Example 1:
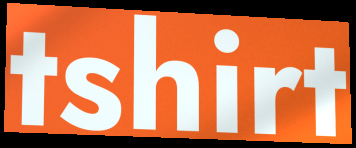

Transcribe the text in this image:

tshirt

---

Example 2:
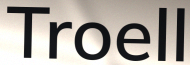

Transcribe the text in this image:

Troell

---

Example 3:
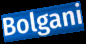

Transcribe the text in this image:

Bolgani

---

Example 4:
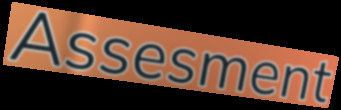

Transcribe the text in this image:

Assesment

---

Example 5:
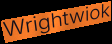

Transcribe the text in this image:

Wrightwiok